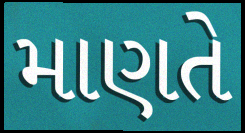
માણતે